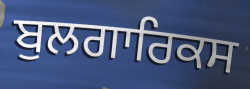
ਬੁਲਗਾਰਿਕਸ